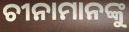
ଚୀନାମାନଙ୍କୁ